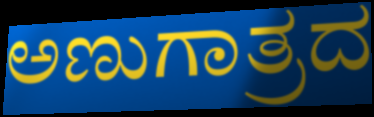
ಅಣುಗಾತ್ರದ